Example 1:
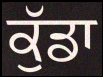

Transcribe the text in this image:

ਕੁੱਡਾ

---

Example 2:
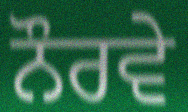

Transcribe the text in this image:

ਨੌਰਵੇ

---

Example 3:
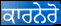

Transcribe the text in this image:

ਕਾਰਨੇਰੋ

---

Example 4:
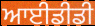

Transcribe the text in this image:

ਆਈਡੀਡੀ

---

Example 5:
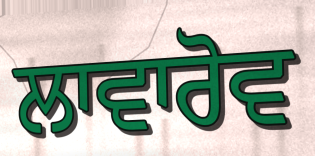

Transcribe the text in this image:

ਲਾਵਾਰੋਵ